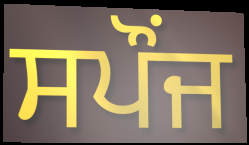
ਸਪੌਂਜ